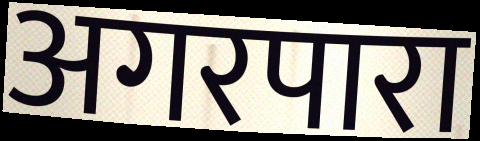
अगरपारा